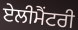
ਏਲੀਮੈਂਟਰੀ